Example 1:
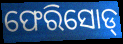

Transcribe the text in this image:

ଫେରିସୋଡ୍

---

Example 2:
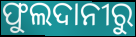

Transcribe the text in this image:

ଫୁଲଦାନୀରୁ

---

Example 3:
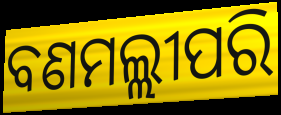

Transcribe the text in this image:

ବଣମଲ୍ଲୀପରି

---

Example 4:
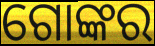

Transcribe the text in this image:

ଗୋଙ୍କର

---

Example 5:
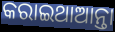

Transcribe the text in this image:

କରାଇଥାଆନ୍ତା